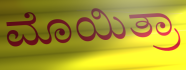
ಮೊಯಿತ್ರಾ